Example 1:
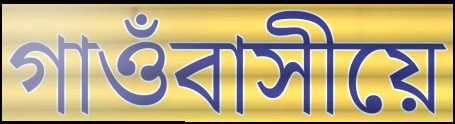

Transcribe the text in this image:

গাওঁবাসীয়ে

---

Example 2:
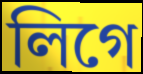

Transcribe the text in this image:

লিগে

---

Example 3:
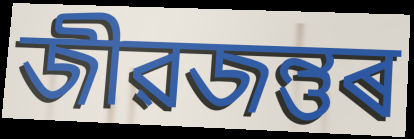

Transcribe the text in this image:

জীৱজন্তুৰ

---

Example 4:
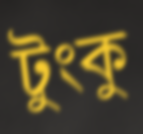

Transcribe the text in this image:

টুংকু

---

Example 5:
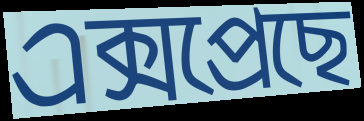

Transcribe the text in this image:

এক্সপ্ৰেছে